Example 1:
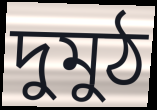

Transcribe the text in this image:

দুমুঠ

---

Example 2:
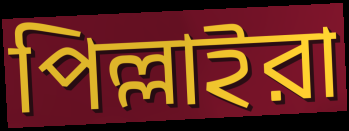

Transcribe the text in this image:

পিল্লাইরা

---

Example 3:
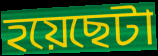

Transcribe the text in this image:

হয়েছেটা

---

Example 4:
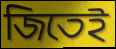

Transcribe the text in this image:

জিতেই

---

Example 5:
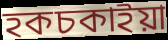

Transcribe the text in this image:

হকচকাইয়া